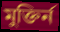
মুক্তির্ন